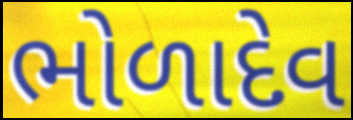
ભોળાદેવ